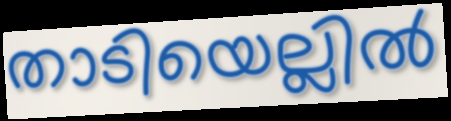
താടിയെല്ലിൽ